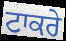
ਟਾਕਰੇ